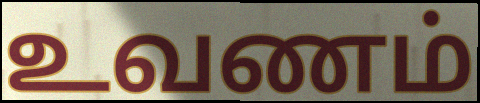
உவணம்